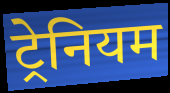
ट्रेनियम